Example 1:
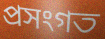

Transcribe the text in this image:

প্ৰসংগত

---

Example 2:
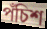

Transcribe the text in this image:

পঁচিশ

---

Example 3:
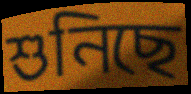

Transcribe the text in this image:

শুনিছে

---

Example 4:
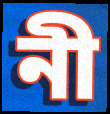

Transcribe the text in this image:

নী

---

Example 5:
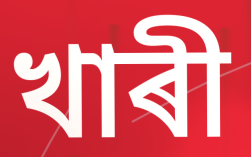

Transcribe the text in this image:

খাৰী